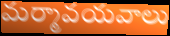
మర్మావయవాలు